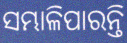
ସମ୍ଭାଳିପାରନ୍ତି